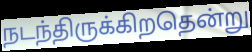
நடந்திருக்கிறதென்று